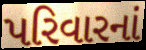
પરિવારનાં